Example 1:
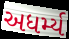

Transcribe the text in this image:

અધર્મ્ય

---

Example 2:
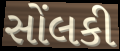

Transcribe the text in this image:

સોંલકી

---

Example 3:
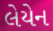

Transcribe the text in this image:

લેયેન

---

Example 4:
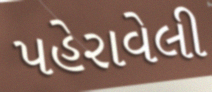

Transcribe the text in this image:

પહેરાવેલી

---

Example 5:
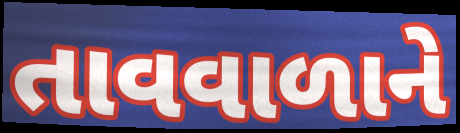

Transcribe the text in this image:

તાવવાળાને